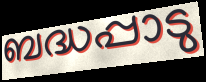
ബദ്ധപ്പാടു